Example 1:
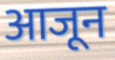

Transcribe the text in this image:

आजून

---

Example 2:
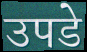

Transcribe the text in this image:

उपडे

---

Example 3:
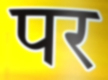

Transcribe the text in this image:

पर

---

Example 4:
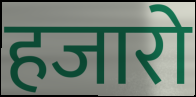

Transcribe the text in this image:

हजारो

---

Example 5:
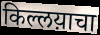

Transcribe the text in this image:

किल्लय़ाचा